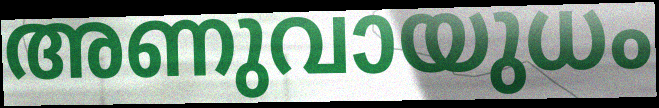
അണുവായുധം